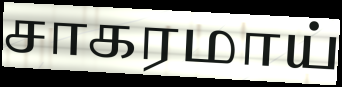
சாகரமாய்